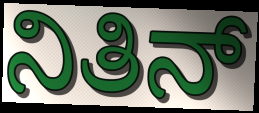
ನಿತಿನ್